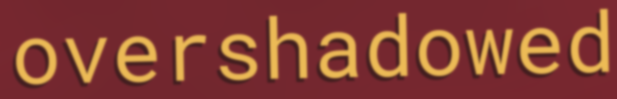
overshadowed